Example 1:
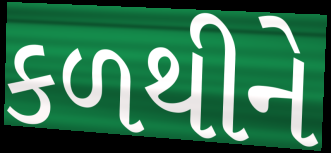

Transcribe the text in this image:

કળથીને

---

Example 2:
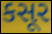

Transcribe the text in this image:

કસૂર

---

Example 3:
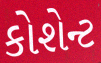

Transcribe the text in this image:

કોશેન્ટ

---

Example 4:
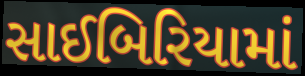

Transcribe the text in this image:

સાઈબિરિયામાં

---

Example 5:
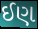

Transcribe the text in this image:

ઈણ